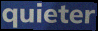
quieter